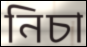
নিচা